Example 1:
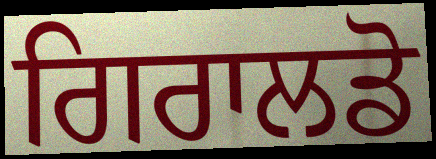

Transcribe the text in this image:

ਗਿਰਾਲਡੋ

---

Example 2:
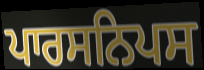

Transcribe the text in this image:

ਪਾਰਸਨਿਪਸ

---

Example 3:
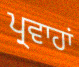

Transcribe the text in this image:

ਪ੍ਰਵਾਹਾਂ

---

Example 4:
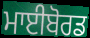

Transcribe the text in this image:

ਮਾਈਬੋਰਡ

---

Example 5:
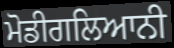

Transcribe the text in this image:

ਮੋਡੀਗਲਿਆਨੀ